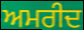
ਅਮਰੀਦ